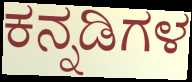
ಕನ್ನಡಿಗಳ